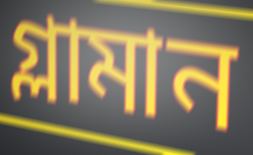
গ্লামান